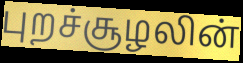
புறச்சூழலின்